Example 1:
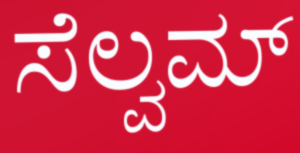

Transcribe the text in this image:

ಸೆಲ್ವಮ್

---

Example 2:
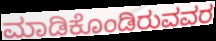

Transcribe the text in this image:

ಮಾಡಿಕೊಂಡಿರುವವರ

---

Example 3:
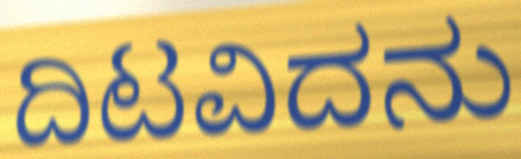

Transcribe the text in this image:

ದಿಟವಿದನು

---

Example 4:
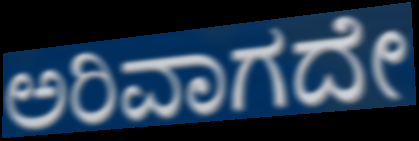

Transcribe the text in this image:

ಅರಿವಾಗದೇ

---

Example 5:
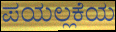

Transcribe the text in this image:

ಪಯಲ್ಲಕೆಯ